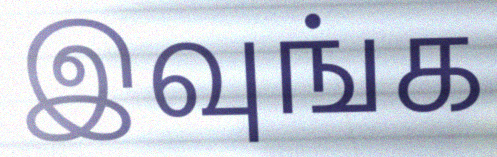
இவுங்க